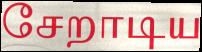
சேறாடிய